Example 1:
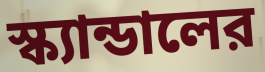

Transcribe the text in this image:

স্ক্যান্ডালের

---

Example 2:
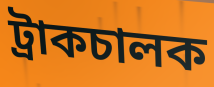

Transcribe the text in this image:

ট্রাকচালক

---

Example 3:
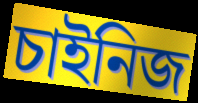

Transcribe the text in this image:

চাইনিজ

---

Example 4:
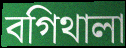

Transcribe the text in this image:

বগিথালা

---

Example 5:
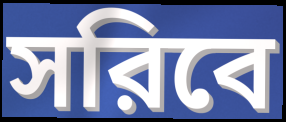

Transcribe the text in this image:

সরিবে